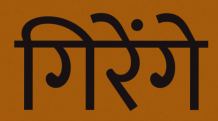
गिरेंगे